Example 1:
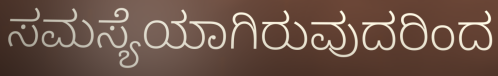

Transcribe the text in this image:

ಸಮಸ್ಯೆಯಾಗಿರುವುದರಿಂದ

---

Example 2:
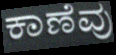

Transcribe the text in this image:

ಕಾಣೆವು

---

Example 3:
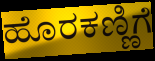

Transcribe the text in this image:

ಹೊರಕಣ್ಣಿಗೆ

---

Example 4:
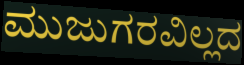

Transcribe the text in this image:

ಮುಜುಗರವಿಲ್ಲದ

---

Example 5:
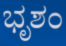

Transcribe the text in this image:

ಭೃಶಂ